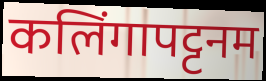
कलिंगापट्टनम